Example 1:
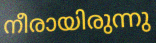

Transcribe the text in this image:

നീരായിരുന്നു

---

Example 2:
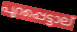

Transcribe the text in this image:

പുറപ്പെട്ടാല്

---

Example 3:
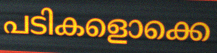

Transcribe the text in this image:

പടികളൊക്കെ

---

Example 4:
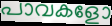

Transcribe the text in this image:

പാവകളോ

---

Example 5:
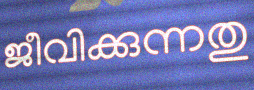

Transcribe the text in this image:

ജീവിക്കുന്നതു